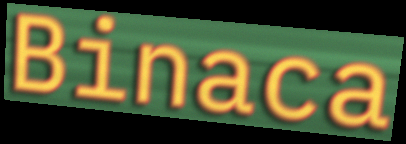
Binaca